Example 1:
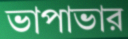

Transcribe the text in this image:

ভাপাভার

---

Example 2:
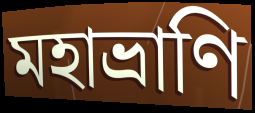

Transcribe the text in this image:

মহাভ্রাণি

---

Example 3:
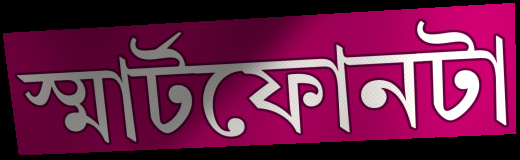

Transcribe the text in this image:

স্মার্টফোনটা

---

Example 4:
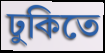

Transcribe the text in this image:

ঢুকিতে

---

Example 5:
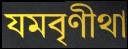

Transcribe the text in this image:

যমবৃণীথা